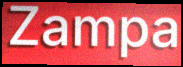
Zampa